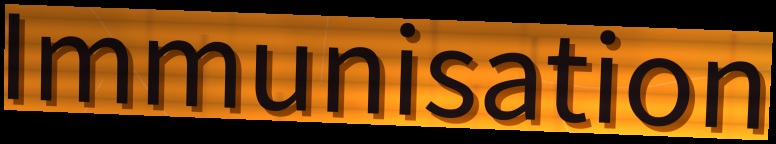
Immunisation